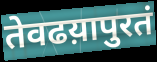
तेवढय़ापुरतं